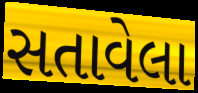
સતાવેલા